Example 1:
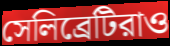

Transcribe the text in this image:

সেলিব্রেটিরাও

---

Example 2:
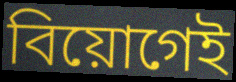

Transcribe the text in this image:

বিয়োগেই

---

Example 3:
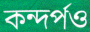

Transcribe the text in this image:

কন্দর্পও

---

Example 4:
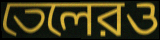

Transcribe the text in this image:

তেলেরও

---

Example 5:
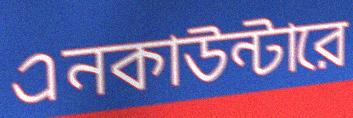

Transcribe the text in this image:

এনকাউন্টারে